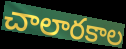
చాలారకాల